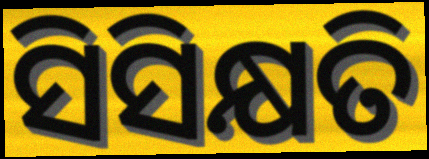
ସିସିକ୍ଷତି